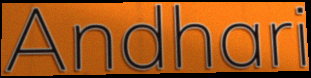
Andhari